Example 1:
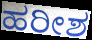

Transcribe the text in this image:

ಹರೀಶ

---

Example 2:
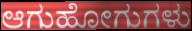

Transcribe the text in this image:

ಆಗುಹೋಗುಗಳು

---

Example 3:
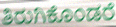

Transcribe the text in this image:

ತಿರುಗಿಕೊಂಡರೆ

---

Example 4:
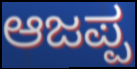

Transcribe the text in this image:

ಆಜಪ್ಪ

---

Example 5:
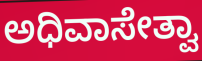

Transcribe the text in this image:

ಅಧಿವಾಸೇತ್ವಾ